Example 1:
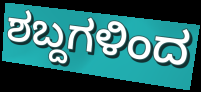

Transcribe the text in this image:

ಶಬ್ದಗಳಿಂದ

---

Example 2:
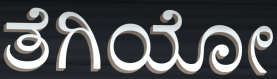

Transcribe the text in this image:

ತೆಗಿಯೋ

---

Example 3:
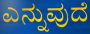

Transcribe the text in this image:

ಎನ್ನುವುದೆ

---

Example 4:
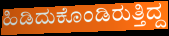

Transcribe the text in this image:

ಹಿಡಿದುಕೊಂಡಿರುತ್ತಿದ್ದ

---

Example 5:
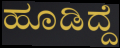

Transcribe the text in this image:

ಹೂಡಿದ್ದೆ